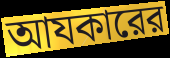
আযকারের